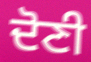
ਦੋਣੀ